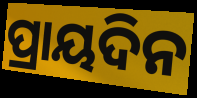
ପ୍ରାୟଦିନ